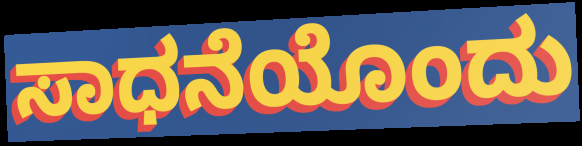
ಸಾಧನೆಯೊಂದು